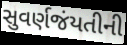
સુવર્ણજંયતીની